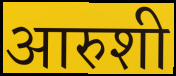
आरुशी